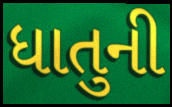
ધાતુની